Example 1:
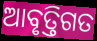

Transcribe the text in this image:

ଆବୃତ୍ତିଗତ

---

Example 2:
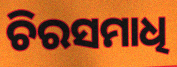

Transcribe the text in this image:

ଚିରସମାଧି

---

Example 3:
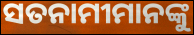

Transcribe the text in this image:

ସତନାମୀମାନଙ୍କୁ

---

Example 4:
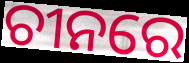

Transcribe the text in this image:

ଚୀନରେ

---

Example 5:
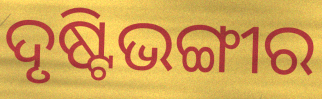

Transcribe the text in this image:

ଦୃଷ୍ଟିଭଙ୍ଗୀର